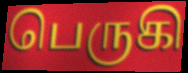
பெருகி